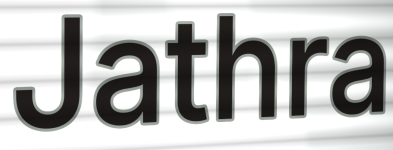
Jathra